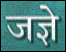
जज्ञे